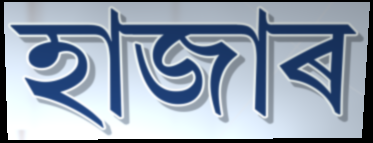
হাজাৰ